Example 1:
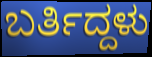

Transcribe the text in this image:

ಬರ್ತಿದ್ದಳು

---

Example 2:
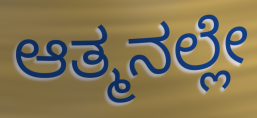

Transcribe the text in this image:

ಆತ್ಮನಲ್ಲೇ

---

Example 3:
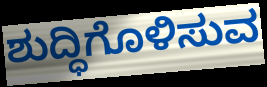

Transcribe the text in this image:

ಶುದ್ಧಿಗೊಳಿಸುವ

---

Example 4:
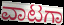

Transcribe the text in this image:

ವಾಟಗಾ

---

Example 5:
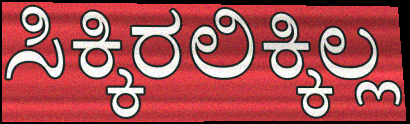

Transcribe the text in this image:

ಸಿಕ್ಕಿರಲಿಕ್ಕಿಲ್ಲ